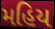
મહિય